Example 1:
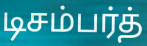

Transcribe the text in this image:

டிசம்பர்த்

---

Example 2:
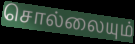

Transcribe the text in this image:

சொல்லையும்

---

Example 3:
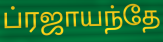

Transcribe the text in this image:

ப்ரஜாயந்தே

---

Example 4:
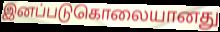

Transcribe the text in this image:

இனப்படுகொலையானது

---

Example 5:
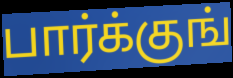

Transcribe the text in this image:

பார்க்குங்